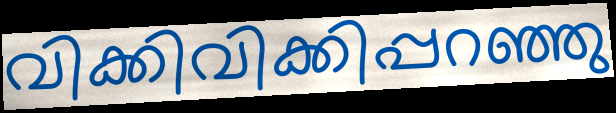
വിക്കിവിക്കിപ്പറഞ്ഞു